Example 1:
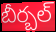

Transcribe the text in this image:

బీర్బల్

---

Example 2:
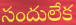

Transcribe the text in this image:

సందులేక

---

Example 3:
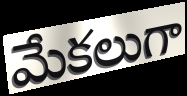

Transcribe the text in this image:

మేకలుగా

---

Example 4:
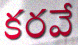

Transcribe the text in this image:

కరవే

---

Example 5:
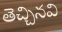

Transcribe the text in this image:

తెచ్చినవి